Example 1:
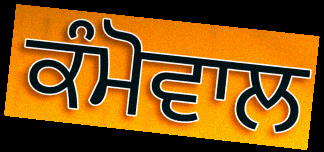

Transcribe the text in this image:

ਕੰਮੋਵਾਲ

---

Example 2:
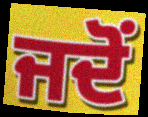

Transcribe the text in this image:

ਜਦੋਂ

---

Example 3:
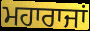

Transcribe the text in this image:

ਮਹਾਰਾਜਾਂ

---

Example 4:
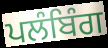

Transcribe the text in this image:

ਪਲੰਬਿੰਗ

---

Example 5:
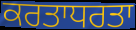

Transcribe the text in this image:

ਕਰਤਾਧਰਤਾ